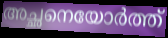
അച്ഛനെയോർത്ത്